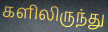
களிலிருந்து